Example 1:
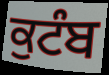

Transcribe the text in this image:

ਕੁਟੰਬ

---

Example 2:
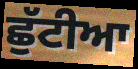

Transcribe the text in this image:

ਛੁੱਟੀਆ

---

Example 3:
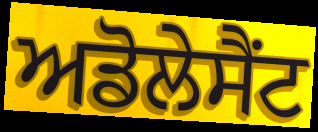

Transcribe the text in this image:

ਅਡੋਲੇਸੈਂਟ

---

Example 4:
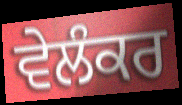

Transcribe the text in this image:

ਵੇਲੰਕਰ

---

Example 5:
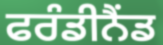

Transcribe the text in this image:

ਫਰੰਡੀਨੈਂਡ